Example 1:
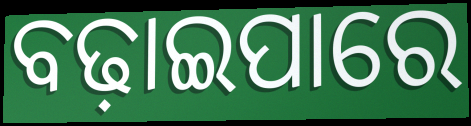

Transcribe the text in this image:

ବଢ଼ାଇପାରେ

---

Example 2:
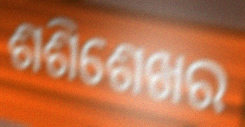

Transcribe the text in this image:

ଶଶିଶେଖର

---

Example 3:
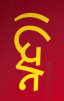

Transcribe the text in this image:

ହ୍ନି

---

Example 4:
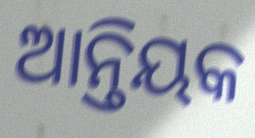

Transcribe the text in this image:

ଆନ୍ତିୟକ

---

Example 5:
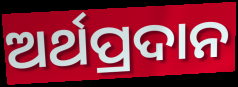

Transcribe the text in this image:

ଅର୍ଥପ୍ରଦାନ